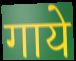
गाये